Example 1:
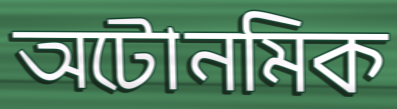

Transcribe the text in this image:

অটোনমিক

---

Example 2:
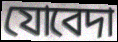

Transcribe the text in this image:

যোবেদা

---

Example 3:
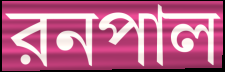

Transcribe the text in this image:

রনপাল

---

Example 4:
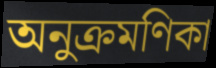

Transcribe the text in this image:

অনুক্রমণিকা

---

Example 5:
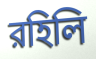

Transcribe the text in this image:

রহিলি